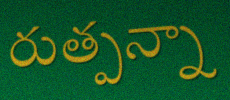
రుత్పన్నా